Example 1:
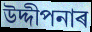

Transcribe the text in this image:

উদ্দীপনাৰ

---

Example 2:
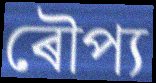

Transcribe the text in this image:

ৰৌপ্য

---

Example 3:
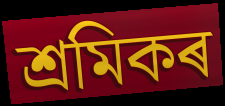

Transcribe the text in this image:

শ্ৰমিকৰ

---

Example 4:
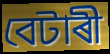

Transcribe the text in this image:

বেটাৰী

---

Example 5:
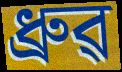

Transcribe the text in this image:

ধ্ৰুৱ